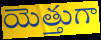
యెత్తుగా